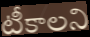
టీకాలని